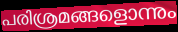
പരിശ്രമങ്ങളൊന്നും